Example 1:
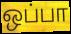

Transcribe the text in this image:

ஒப்பா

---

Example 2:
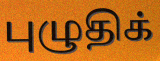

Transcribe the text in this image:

புழுதிக்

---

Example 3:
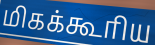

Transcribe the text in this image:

மிகக்கூரிய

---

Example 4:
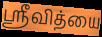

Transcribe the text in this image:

ஸ்ரீவித்யை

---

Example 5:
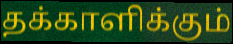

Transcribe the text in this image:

தக்காளிக்கும்